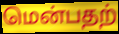
மென்பதற்